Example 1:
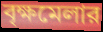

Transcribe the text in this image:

বৃক্ষমেলার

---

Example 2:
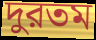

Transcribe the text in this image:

দুরতম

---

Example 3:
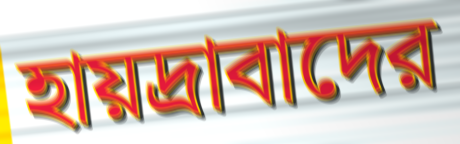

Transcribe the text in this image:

হায়দ্রাবাদের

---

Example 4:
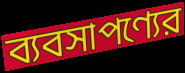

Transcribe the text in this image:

ব্যবসাপণ্যের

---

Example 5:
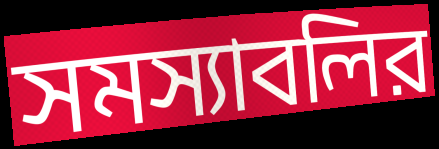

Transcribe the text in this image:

সমস্যাবলির